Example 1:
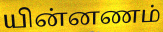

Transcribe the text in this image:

யின்னணம்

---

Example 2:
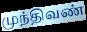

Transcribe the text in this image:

முந்திவண்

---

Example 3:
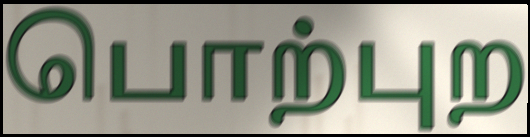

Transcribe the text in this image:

பொற்புற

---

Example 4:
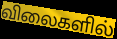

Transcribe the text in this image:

விலைகளில்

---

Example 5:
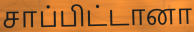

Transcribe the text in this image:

சாப்பிட்டானா